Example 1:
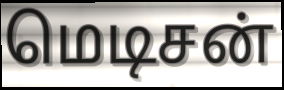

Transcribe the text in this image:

மெடிசன்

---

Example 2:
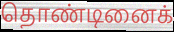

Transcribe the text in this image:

தொண்டினைக்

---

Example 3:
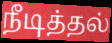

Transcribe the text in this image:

நீடித்தல்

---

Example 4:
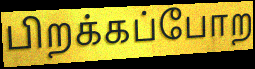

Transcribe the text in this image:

பிறக்கப்போற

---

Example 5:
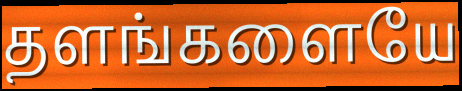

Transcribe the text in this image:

தளங்களையே